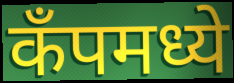
कॅंपमध्ये